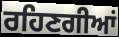
ਰਹਿਣਗੀਆਂ